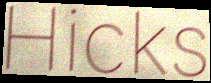
Hicks